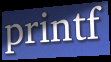
printf